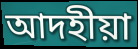
আদহীয়া